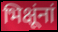
भिक्षूंनां